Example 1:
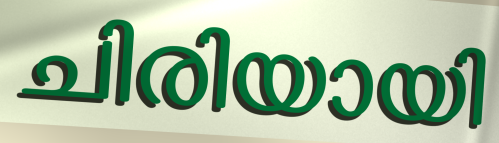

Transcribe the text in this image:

ചിരിയായി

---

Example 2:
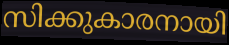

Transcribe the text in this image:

സിക്കുകാരനായി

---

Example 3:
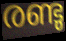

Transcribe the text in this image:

രണ്ടു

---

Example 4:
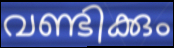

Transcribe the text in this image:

വണ്ടിക്കും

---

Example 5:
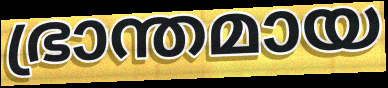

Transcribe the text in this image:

ഭ്രാന്തമായ